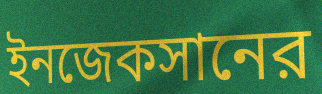
ইনজেকসানের